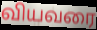
வியவரை